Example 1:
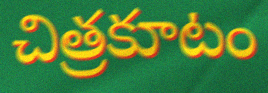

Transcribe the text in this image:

చిత్రకూటం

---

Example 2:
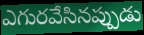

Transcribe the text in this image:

ఎగురవేసినప్పుడు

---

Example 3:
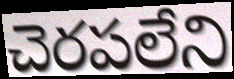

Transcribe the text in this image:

చెరపలేని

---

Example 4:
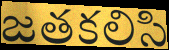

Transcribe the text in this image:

జతకలిసి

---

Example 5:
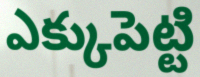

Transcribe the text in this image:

ఎక్కుపెట్టి